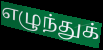
எழுந்துக்